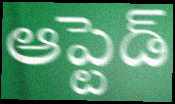
ఆప్టెడ్